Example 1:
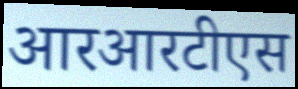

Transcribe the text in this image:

आरआरटीएस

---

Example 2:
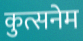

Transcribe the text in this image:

कुत्सनेम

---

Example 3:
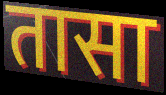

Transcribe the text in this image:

तासा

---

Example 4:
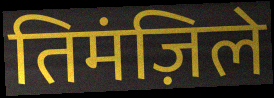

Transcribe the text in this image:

तिमंज़िले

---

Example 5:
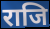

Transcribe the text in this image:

राजि